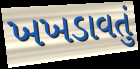
ખખડાવતું